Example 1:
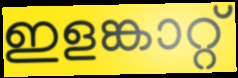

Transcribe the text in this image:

ഇളങ്കാറ്റ്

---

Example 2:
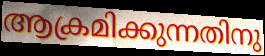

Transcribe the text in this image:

ആക്രമിക്കുന്നതിനു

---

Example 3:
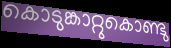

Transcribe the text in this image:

കൊടുങ്കാറ്റുകൊണ്ടു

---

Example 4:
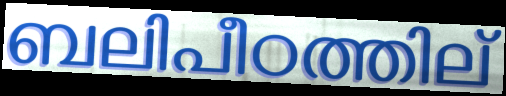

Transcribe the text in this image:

ബലിപീഠത്തില്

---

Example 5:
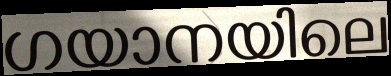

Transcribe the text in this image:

ഗയാനയിലെ